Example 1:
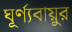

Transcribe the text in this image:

ঘূর্ণ্যবায়ুর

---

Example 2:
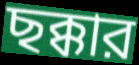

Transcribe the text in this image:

ছক্কার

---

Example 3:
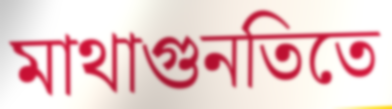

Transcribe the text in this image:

মাথাগুনতিতে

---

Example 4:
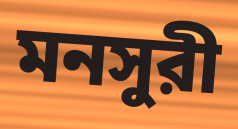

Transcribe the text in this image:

মনসুরী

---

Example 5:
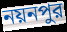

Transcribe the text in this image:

নয়নপুর